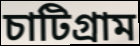
চাটিগ্রাম